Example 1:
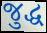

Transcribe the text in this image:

જુદ્ધ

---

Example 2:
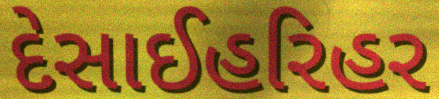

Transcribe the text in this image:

દેસાઈહરિહર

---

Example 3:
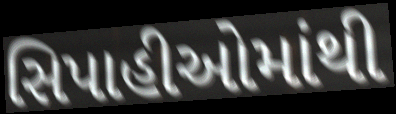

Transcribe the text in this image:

સિપાહીઓમાંથી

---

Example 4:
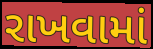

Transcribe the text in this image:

રાખવામાં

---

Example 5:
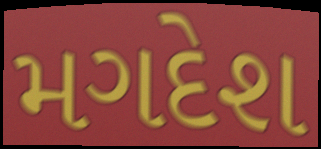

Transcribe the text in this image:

મગદેશ